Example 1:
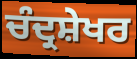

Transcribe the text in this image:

ਚੰਦ੍ਰਸ਼ੇਖਰ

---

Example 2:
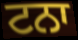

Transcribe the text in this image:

ਟਨਾ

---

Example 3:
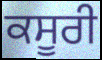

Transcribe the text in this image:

ਕਸੂਰੀ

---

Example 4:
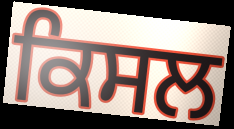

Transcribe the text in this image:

ਕਿਸਲ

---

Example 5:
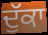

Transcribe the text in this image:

ਦੁੱਕਾ